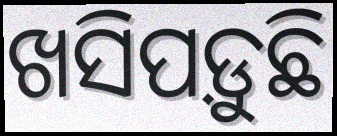
ଖସିପଡ଼ୁଛି